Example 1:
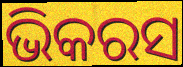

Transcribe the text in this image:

ଭିକରସ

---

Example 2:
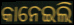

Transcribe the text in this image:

କାନେଇଲି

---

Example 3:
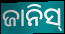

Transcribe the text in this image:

ଜାନିସ୍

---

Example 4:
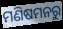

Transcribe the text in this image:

ମଣିଷମନରୁ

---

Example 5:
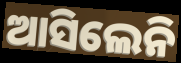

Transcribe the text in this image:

ଆସିଲେନି